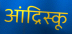
आंद्रिस्कू